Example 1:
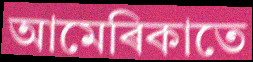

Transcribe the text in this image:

আমেৰিকাতে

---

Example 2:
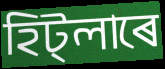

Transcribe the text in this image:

হিট্‌লাৰে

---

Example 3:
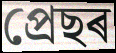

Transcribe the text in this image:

প্ৰেছৰ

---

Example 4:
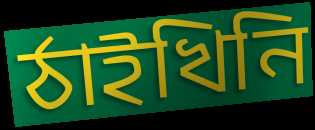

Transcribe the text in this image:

ঠাইখিনি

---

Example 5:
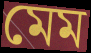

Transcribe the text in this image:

মেম